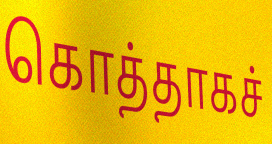
கொத்தாகச்